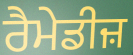
ਰੈਮੇਡੀਜ਼